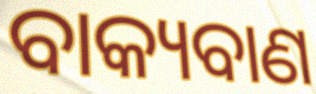
ବାକ୍ୟବାଣ